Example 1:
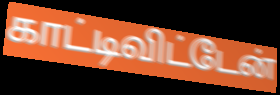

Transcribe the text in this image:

காட்டிவிட்டேன்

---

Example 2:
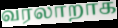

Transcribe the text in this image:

வரலாறாக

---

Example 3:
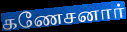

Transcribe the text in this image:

கணேசனார்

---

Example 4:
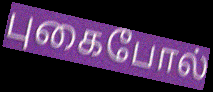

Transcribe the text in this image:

புகைபோல்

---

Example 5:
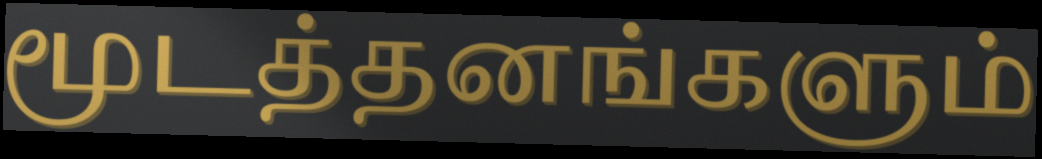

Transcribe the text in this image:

மூடத்தனங்களும்